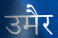
उमैर